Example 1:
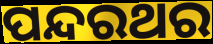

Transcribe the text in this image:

ପନ୍ଦରଥର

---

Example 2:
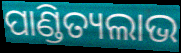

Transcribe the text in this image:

ପାଣ୍ଡିତ୍ୟଲାଭ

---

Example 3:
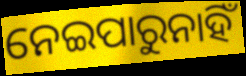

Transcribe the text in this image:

ନେଇପାରୁନାହିଁ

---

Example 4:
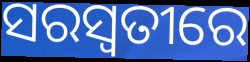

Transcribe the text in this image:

ସରସ୍ୱତୀରେ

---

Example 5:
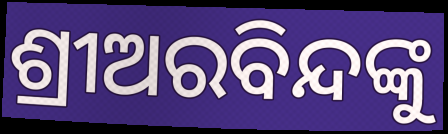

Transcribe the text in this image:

ଶ୍ରୀଅରବିନ୍ଦଙ୍କୁ